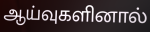
ஆய்வுகளினால்